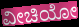
ವೀಚಿಯೋ